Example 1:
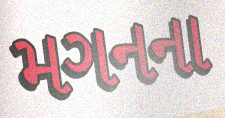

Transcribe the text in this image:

મગનના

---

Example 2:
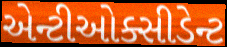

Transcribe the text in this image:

એન્ટીઓક્સીડેન્ટ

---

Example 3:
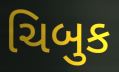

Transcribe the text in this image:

ચિબુક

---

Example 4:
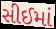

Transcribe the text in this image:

સીઈમાં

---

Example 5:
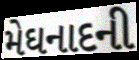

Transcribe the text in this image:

મેઘનાદની